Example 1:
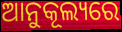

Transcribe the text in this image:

ଆନୁକୂଲ୍ୟରେ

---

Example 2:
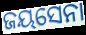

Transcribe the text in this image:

ଜୟସେନା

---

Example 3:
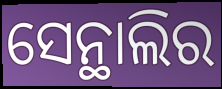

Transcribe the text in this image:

ସେନ୍ଥାଲିର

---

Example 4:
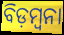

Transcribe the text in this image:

ବିଡ଼ମ୍ୱନା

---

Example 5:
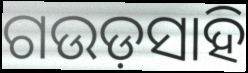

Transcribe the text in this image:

ଗଉଡ଼ସାହି